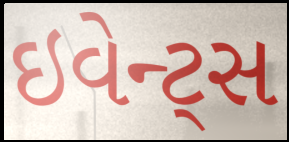
ઇવેન્ટ્સ